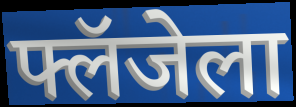
फ्लॅजेला